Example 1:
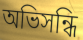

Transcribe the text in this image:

অভিসন্ধি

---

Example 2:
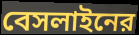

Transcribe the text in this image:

বেসলাইনের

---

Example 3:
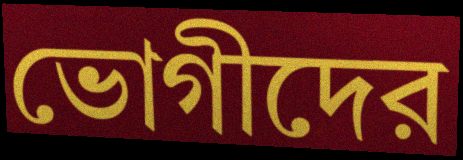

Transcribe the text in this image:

ভোগীদের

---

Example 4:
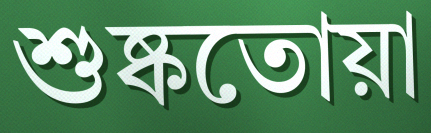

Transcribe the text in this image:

শুষ্কতোয়া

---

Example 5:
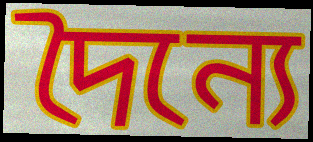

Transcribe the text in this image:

দৈন্যে